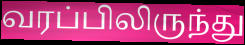
வரப்பிலிருந்து